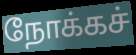
நோக்கச்